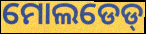
ମୋଲଡେଡ୍